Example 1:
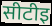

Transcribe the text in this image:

सीटीइ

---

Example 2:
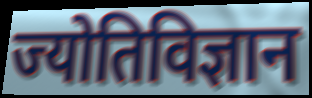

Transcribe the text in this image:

ज्योतिविज्ञान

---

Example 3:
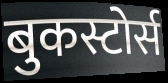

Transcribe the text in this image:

बुकस्टोर्स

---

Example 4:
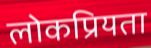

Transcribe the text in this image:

लोकप्रियता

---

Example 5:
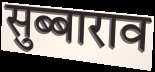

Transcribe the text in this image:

सुब्बाराव